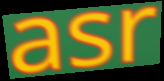
asr